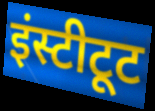
इंस्टीटूट